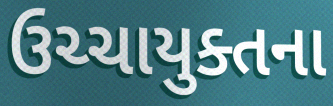
ઉચ્ચાયુક્તના